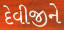
દેવીજીને